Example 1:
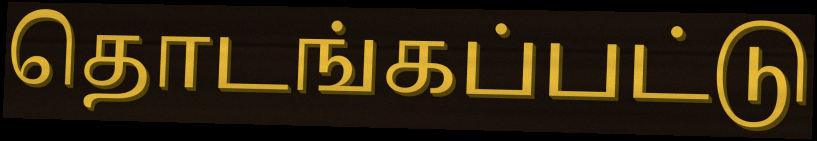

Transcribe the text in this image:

தொடங்கப்பட்டு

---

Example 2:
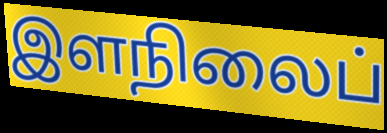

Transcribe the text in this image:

இளநிலைப்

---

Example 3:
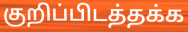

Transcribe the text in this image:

குறிப்பிடத்தக்க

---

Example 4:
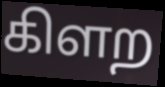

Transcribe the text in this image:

கிளற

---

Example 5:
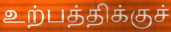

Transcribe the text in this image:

உற்பத்திக்குச்